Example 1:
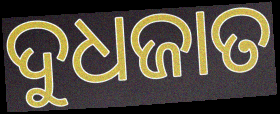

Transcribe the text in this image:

ଦୁଧଜାତ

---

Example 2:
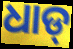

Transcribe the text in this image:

ଧାଡ୍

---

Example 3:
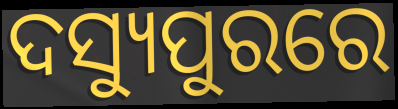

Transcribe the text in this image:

ଦସ୍ୟୁପୁରରେ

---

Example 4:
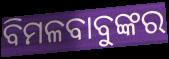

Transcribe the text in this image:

ବିମଳବାବୁଙ୍କର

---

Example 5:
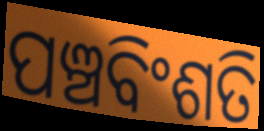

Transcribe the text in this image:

ପଞ୍ଚବିଂଶତି